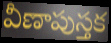
వీణాపుస్తక